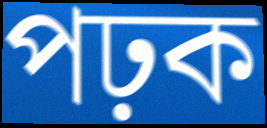
পঢ়ক